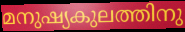
മനുഷ്യകുലത്തിനു